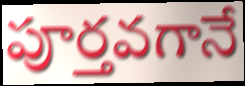
పూర్తవగానే